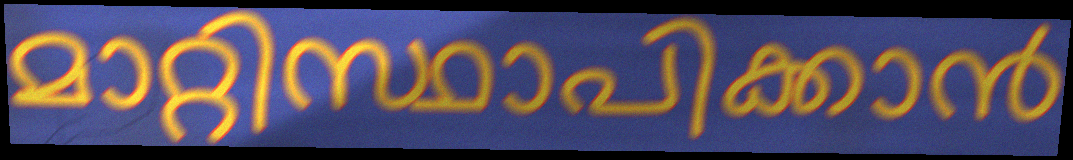
മാറ്റിസ്ഥാപിക്കാൻ